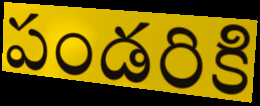
పండరికి